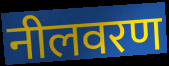
नीलवरण